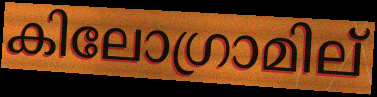
കിലോഗ്രാമില്